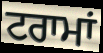
ਟਰਾਮਾਂ